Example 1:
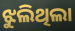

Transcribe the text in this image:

ଝୁଲିଥିଲା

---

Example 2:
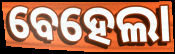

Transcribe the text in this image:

ବେହେଲା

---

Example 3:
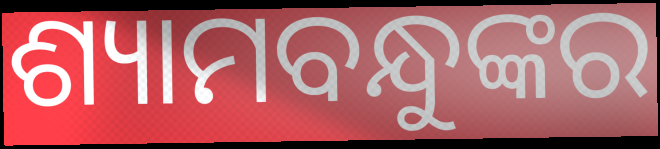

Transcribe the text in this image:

ଶ୍ୟାମବନ୍ଧୁଙ୍କର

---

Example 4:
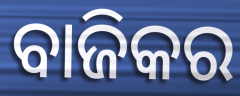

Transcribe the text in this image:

ବାଜିକର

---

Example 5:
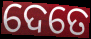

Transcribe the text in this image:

ଦେତେ